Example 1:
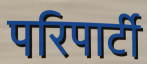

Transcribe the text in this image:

परिपार्टी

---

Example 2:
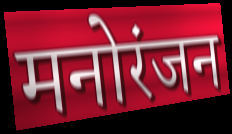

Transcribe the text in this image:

मनोरंजन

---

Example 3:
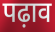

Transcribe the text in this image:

पढ़ाव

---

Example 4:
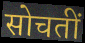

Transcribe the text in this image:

सोचतीं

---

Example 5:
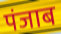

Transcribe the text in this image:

पंजाब